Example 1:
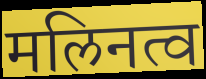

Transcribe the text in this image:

मलिनत्व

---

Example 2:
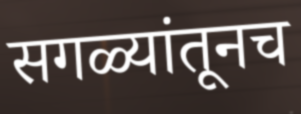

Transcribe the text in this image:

सगळ्यांतूनच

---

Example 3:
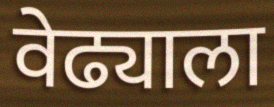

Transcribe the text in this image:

वेढ्याला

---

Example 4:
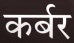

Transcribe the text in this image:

कर्बर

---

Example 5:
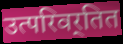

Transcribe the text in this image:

उत्परिवर्तित